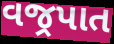
વજ્રપાત